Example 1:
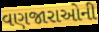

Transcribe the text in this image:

વણજારાઓની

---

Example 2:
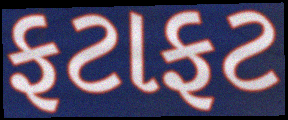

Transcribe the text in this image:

ફટાફટ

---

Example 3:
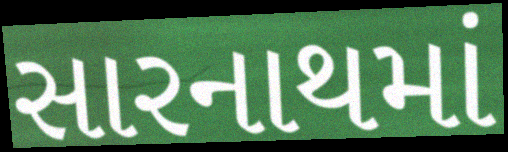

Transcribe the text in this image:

સારનાથમાં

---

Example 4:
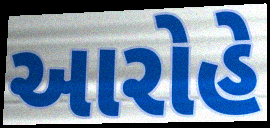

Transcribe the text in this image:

આરોહે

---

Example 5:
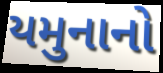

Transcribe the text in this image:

યમુનાનો